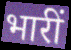
भारीं